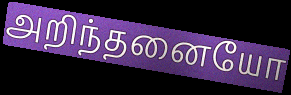
அறிந்தனையோ